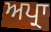
ਅਪ੍ਰਾ